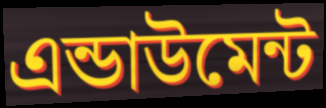
এন্ডাউমেন্ট